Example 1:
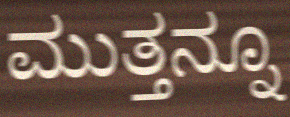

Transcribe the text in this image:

ಮುತ್ತನ್ನೂ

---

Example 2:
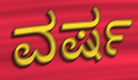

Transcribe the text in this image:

ವರ್ಷ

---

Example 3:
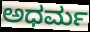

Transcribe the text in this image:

ಅಧರ್ಮ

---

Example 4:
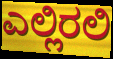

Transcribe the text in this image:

ಎಲ್ಲಿರಲಿ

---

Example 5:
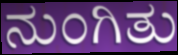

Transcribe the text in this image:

ನುಂಗಿತು